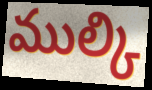
ముల్కి